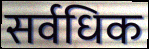
सर्वधिक